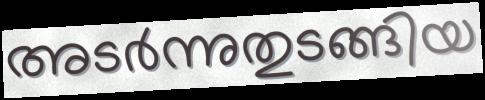
അടർന്നുതുടങ്ങിയ